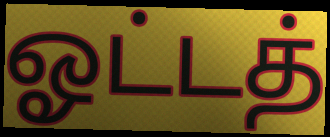
ஓட்டத்